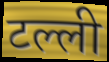
टल्ली